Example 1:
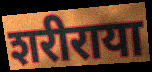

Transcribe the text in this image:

शरीराया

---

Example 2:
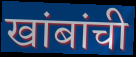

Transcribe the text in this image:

खांबांची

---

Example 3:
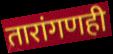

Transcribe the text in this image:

तारांगणही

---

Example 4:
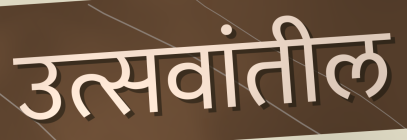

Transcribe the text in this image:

उत्सवांतील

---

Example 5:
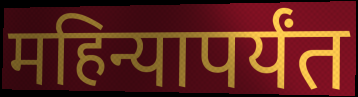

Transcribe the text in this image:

महिन्यापर्यंत